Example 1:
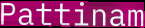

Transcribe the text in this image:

Pattinam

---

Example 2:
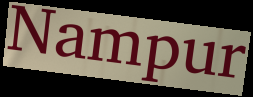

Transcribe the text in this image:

Nampur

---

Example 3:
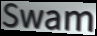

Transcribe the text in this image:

Swam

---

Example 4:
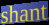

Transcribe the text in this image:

shant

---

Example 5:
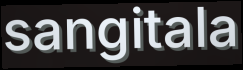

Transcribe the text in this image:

sangitala